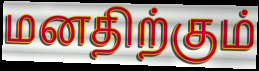
மனதிற்கும்